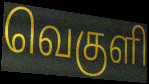
வெகுளி